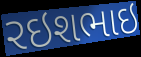
રઇશભાઇ